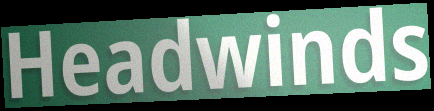
Headwinds